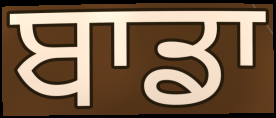
ਬਾਡਾ